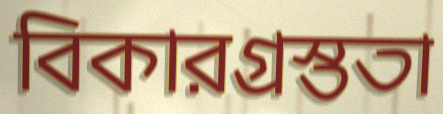
বিকারগ্রস্ততা